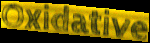
Oxidative